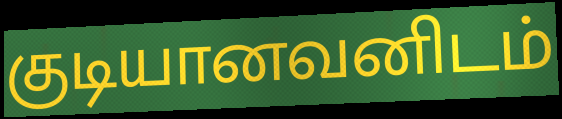
குடியானவனிடம்